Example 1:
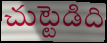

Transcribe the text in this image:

చుట్టెడిది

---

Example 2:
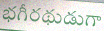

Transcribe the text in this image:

భగీరథుడుగా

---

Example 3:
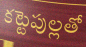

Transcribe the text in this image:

కట్టెపుల్లతో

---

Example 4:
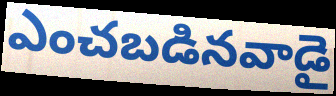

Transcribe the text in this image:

ఎంచబడినవాడై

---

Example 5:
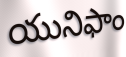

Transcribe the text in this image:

యునిఫాం